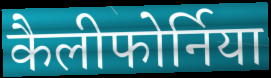
कैलीफोर्निया